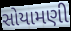
સોયામણી